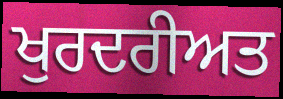
ਖੁਰਦਰੀਅਤ